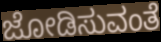
ಜೋಡಿಸುವಂತೆ